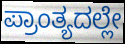
ಪ್ರಾಂತ್ಯದಲ್ಲೇ